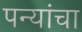
पन्यांचा